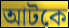
আটকে